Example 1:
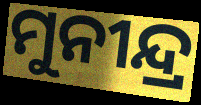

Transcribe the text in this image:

ମୁନୀନ୍ଦ୍ର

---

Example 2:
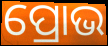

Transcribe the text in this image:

ପ୍ରୋଭ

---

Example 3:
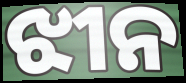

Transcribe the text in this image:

ଝୀନ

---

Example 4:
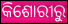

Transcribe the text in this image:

କିଶୋରୀରୁ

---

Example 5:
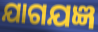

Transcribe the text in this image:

ଯାଗଯଜ୍ଞ